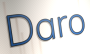
Daro